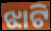
ଝାଟି